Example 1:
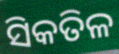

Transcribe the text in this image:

ସିକତିଳ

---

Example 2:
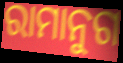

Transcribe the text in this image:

ରାମାନୁଗ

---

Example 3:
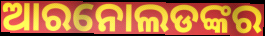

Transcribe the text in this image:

ଆରନୋଲଡଙ୍କର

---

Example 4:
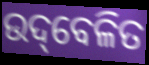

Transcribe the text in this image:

ଉଦ୍‌ବେଳିତ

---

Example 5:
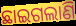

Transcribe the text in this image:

ଛାଇଗଲାଣି